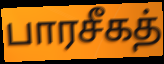
பாரசீகத்